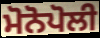
ਮੋਨੋਪੋਲੀ